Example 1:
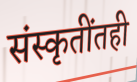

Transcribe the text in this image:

संस्कृतींतही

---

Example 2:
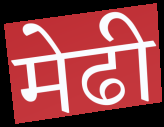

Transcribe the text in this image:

मेढी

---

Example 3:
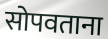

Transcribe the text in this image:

सोपवताना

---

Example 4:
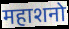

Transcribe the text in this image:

महाशनो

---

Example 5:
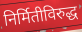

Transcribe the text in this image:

निर्मितीविरुद्ध